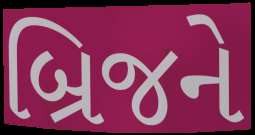
બ્રિજને